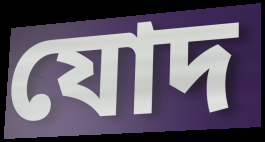
যোদ